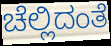
ಚೆಲ್ಲಿದಂತೆ